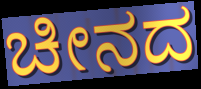
ಚೀನದ